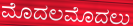
ಮೊದಲಮೊದಲು